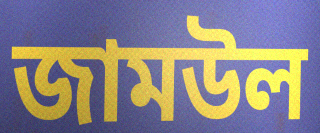
জামউল